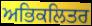
ਅਭਿਕਲਿਤਰ